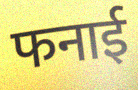
फनाई